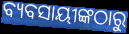
ବ୍ୟବସାୟୀଙ୍କଠାରୁ